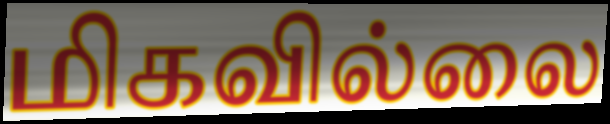
மிகவில்லை